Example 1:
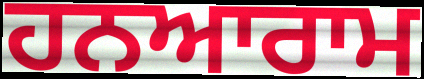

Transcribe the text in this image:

ਹਨਆਰਾਮ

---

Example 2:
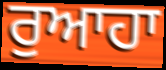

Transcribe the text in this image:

ਰੁਆਹਾ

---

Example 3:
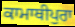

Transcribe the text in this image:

ਕਾਮਾਥੀਪੁਰਾ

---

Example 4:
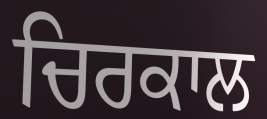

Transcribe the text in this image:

ਚਿਰਕਾਲ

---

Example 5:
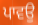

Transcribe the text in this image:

ਪਾਵਉ